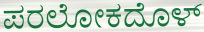
ಪರಲೋಕದೊಳ್